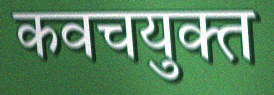
कवचयुक्त